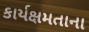
કાર્યક્ષમતાના